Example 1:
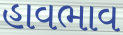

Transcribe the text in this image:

હાવભાવ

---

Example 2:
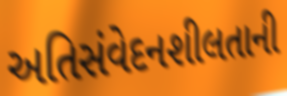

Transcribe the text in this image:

અતિસંવેદનશીલતાની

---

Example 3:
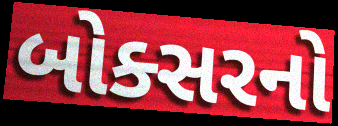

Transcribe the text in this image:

બોક્સરનો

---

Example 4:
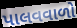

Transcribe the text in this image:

પાલવવાળો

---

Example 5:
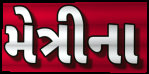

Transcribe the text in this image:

મેત્રીના